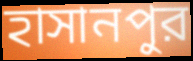
হাসানপুর